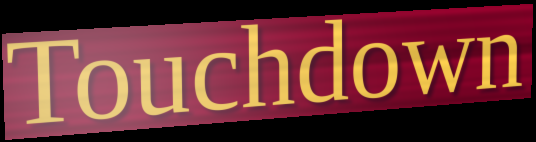
Touchdown